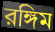
রঙ্গিম